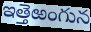
ఇత్తెఱంగున